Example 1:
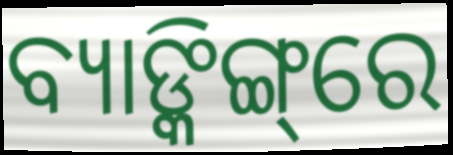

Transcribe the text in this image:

ବ୍ୟାଙ୍କିଙ୍ଗ୍‌ରେ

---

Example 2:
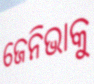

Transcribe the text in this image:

ଜେନିଭାକୁ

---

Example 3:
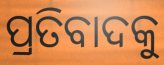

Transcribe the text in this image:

ପ୍ରତିବାଦକୁ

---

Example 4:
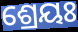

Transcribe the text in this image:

ଶ୍ରେୟଃ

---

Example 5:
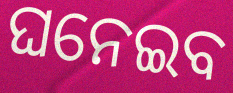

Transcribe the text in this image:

ଘନେଇବ